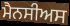
ਮੈਨਸੀਅਸ